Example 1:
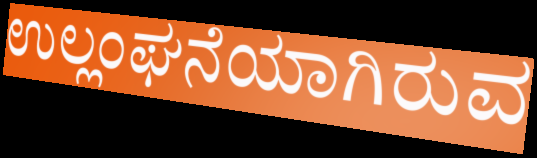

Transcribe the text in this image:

ಉಲ್ಲಂಘನೆಯಾಗಿರುವ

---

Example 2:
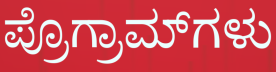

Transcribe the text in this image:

ಪ್ರೊಗ್ರಾಮ್‌ಗಳು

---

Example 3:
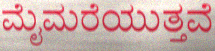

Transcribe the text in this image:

ಮೈಮರೆಯುತ್ತವೆ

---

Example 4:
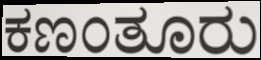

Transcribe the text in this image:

ಕಣಂತೂರು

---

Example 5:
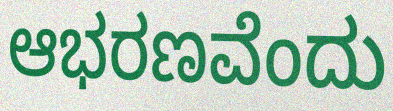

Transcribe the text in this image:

ಆಭರಣವೆಂದು